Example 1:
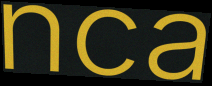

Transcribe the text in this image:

nca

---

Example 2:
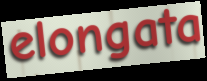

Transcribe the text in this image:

elongata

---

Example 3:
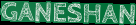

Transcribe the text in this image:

GANESHAN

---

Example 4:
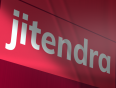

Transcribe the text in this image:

jitendra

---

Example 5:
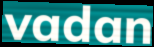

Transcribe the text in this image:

vadan